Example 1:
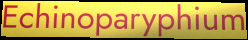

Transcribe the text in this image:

Echinoparyphium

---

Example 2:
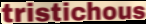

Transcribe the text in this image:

tristichous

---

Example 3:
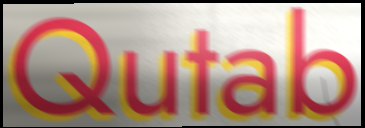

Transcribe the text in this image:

Qutab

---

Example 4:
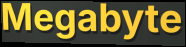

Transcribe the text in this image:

Megabyte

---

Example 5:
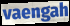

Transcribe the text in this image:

vaengah